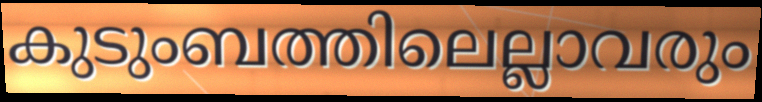
കുടുംബത്തിലെല്ലാവരും